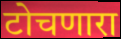
टोचणारा